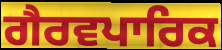
ਗੈਰਵਪਾਰਿਕ